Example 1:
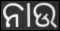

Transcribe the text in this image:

ନାଉ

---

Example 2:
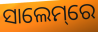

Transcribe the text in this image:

ସାଲେମ୍‌ରେ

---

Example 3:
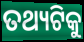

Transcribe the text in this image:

ତଥ୍ୟଟିକୁ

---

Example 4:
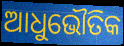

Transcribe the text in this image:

ଆଧୁଭୌତିକ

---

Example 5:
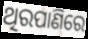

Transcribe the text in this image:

ଥିରପାଣିରେ